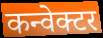
कन्वेक्टर